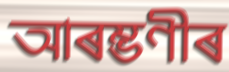
আৰম্ভণীৰ